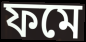
ফমে